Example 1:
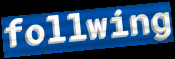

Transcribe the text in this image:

follwing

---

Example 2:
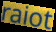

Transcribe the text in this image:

raiot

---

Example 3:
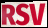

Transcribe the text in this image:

RSV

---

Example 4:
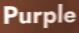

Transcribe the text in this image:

Purple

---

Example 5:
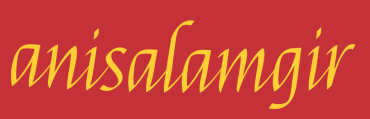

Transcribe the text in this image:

anisalamgir